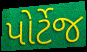
પોર્ટેજ